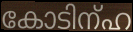
കോടിന്ഹ